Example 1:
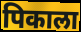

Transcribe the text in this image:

पिकाला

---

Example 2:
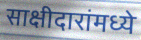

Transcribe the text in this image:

साक्षीदारांमध्ये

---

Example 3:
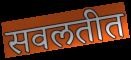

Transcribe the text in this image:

सवलतीत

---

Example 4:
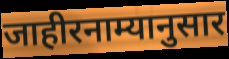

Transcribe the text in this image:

जाहीरनाम्यानुसार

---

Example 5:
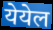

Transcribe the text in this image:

येयेल